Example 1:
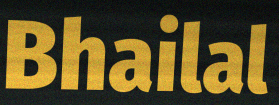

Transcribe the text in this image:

Bhailal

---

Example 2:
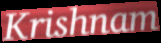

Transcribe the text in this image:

Krishnam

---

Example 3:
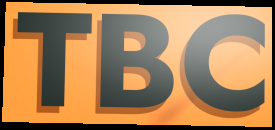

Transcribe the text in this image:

TBC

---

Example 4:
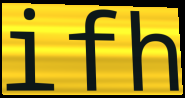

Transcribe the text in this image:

ifh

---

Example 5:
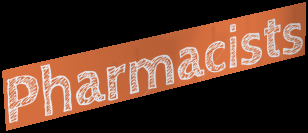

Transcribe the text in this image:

Pharmacists